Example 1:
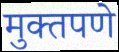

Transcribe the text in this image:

मुक्तपणे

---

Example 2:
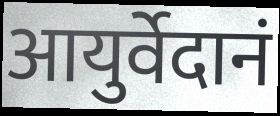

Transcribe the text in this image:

आयुर्वेदानं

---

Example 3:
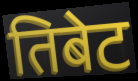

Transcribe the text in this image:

तिबेट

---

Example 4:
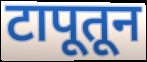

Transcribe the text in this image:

टापूतून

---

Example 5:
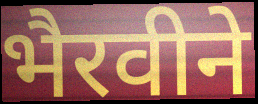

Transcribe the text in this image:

भैरवीने